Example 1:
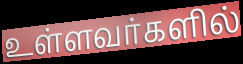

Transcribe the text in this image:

உள்ளவர்களில்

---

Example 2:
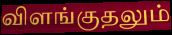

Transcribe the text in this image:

விளங்குதலும்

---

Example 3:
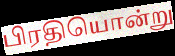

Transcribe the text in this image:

பிரதியொன்று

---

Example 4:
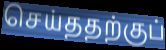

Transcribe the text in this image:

செய்ததற்குப்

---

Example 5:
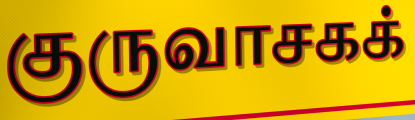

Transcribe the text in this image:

குருவாசகக்